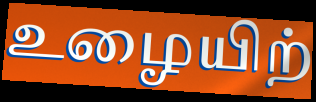
உழையிற்